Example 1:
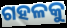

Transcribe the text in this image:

ଗହଳକୁ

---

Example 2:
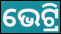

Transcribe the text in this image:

ଭେଟ୍ରି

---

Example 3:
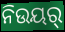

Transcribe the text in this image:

ନିଉୟର୍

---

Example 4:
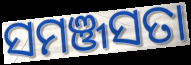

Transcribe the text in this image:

ସମଞ୍ଜସତା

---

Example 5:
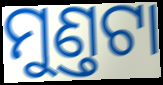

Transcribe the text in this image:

ମୁଣ୍ତଟା